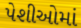
પેશીઓમાં